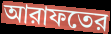
আরাফতের